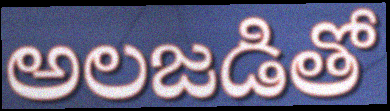
అలజడితో